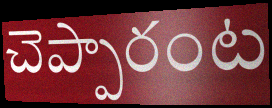
చెప్పారంట